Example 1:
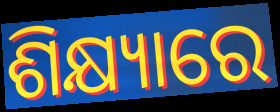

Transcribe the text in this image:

ଶିକ୍ଷ୍ୟାରେ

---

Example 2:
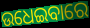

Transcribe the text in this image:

ଉଧେଇବାରେ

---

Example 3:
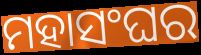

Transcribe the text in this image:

ମହାସଂଘର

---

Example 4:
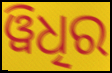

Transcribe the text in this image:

ୱିଧିର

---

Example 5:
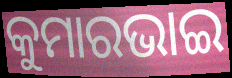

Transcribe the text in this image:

କୁମାରଭାଇ